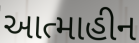
આત્માહીન